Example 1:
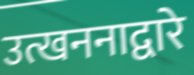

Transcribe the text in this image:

उत्खननाद्वारे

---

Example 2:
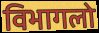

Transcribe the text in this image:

विभागलो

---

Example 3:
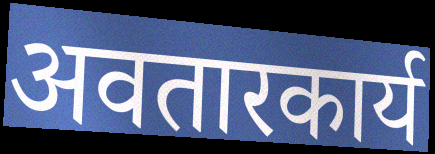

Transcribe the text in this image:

अवतारकार्य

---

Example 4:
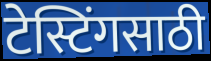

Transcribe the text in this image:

टेस्टिंगसाठी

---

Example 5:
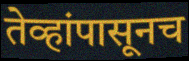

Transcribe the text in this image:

तेव्हांपासूनच